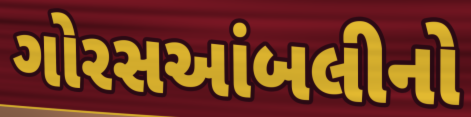
ગોરસઆંબલીનો